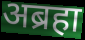
अब्रहा